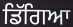
ਡਿੱਗਿਆ